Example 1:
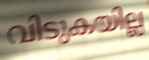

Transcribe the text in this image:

വിടുകയില്ല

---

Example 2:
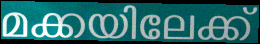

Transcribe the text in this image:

മക്കയിലേക്ക്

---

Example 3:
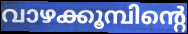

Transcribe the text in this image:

വാഴക്കൂമ്പിന്റെ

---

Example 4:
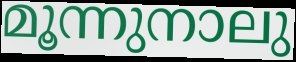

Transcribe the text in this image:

മൂന്നുനാലു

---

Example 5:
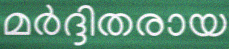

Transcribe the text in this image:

മർദ്ദിതരായ